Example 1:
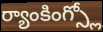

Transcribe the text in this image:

ర్యాంకింగ్స్లో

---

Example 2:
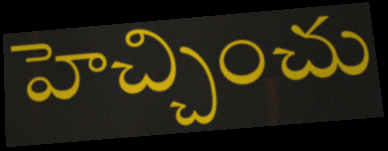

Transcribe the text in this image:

హెచ్చించు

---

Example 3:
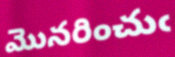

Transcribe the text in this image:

మొనరించుఁ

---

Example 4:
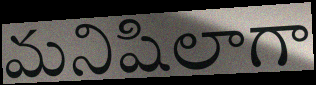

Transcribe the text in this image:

మనిషిలాగా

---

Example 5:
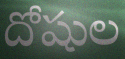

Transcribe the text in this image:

దోషుల